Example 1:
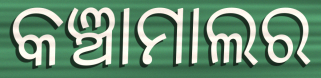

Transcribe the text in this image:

କଞ୍ଚାମାଲର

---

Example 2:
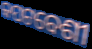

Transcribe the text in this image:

କପଟବେଶୀ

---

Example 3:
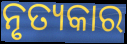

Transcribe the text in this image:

ନୃତ୍ୟକାର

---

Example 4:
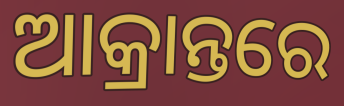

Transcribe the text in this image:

ଆକ୍ରାନ୍ତରେ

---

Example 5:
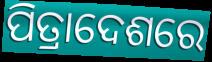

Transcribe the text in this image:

ପିତ୍ରାଦେଶରେ